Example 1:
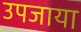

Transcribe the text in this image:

उपजाया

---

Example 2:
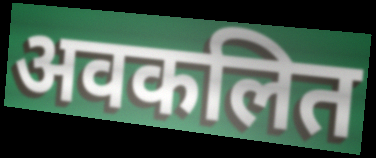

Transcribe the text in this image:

अवकलित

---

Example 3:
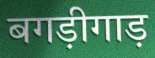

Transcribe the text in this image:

बगड़ीगाड़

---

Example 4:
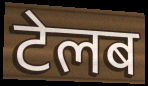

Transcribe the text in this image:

टेलब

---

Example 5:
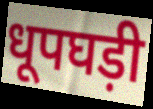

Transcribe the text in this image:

धूपघड़ी